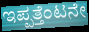
ಇಪ್ಪತ್ತೆಂಟನೇ